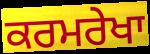
ਕਰਮਰੇਖਾ